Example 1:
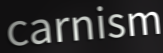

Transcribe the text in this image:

carnism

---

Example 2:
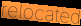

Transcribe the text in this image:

relocated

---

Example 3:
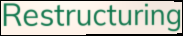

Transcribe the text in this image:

Restructuring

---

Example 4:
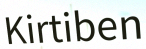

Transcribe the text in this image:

Kirtiben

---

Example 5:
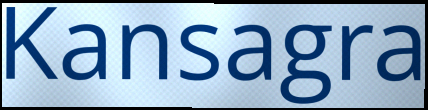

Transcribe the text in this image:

Kansagra